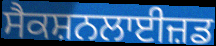
ਸੈਕਸ਼ਨਲਾਈਜ਼ਡ